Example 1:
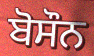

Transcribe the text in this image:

ਬੋਸੌਨ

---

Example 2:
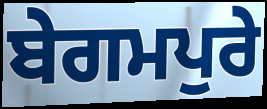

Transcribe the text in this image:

ਬੇਗਮਪੁਰੇ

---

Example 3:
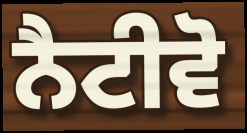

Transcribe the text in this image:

ਨੈਟੀਵੋ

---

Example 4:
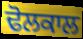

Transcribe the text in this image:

ਢੋਲਕਾਲ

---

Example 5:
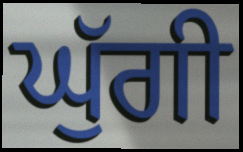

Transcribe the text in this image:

ਘੁੱਗੀ